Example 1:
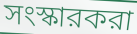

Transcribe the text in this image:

সংস্কারকরা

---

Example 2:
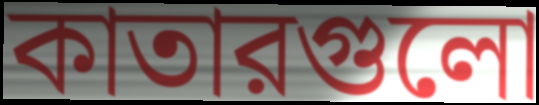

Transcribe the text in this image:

কাতারগুলো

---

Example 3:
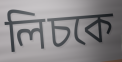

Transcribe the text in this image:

লিচকে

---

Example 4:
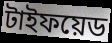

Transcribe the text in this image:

টাইফয়েড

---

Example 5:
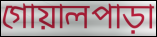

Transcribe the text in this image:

গোয়ালপাড়া